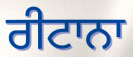
ਰੀਟਾਨਾ